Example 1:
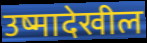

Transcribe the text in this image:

उष्मादेखील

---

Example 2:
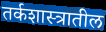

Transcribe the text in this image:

तर्कशास्त्रातील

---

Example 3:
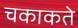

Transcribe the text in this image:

चकाकते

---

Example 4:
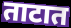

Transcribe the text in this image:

ताटात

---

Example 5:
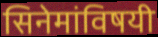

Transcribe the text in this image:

सिनेमांविषयी